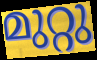
മുറ്റു